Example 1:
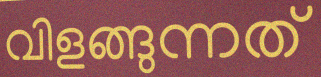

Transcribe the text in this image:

വിളങ്ങുന്നത്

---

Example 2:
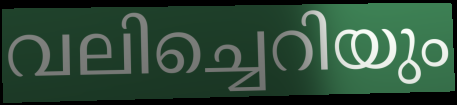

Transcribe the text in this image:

വലിച്ചെറിയും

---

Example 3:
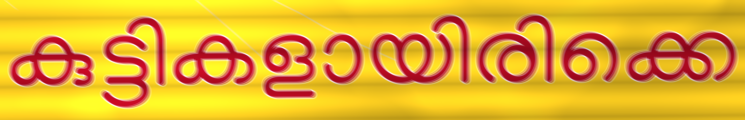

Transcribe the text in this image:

കുട്ടികളായിരിക്കെ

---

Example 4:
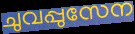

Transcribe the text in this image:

ചുവപ്പുസേന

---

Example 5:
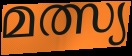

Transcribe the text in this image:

മത്സ്യ